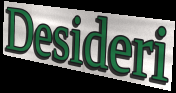
Desideri